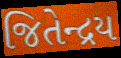
જિતેન્દ્રય